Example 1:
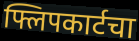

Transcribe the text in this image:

फ्लिपकार्टचा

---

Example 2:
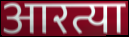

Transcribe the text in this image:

आरत्या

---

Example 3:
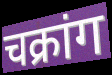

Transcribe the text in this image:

चक्रांग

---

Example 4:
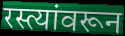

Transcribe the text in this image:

रस्त्यांवरून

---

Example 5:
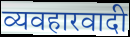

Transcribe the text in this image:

व्यवहारवादी